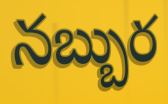
నబ్బుర